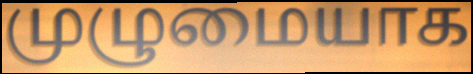
முழுமையாக